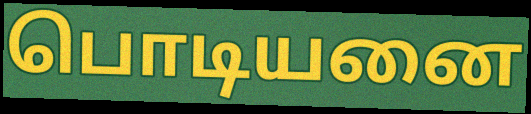
பொடியனை